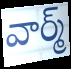
వార్మ్